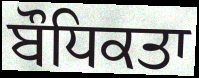
ਬੌਧਿਕਤਾ